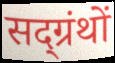
सद्ग्रंथों